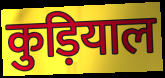
कुड़ियाल